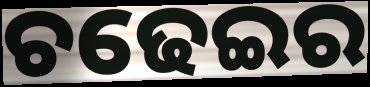
ଚଢେଇର